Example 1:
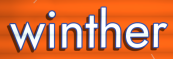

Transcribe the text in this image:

winther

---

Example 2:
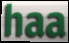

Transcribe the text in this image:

haa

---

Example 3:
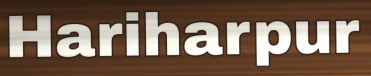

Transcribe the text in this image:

Hariharpur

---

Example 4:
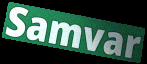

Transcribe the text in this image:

Samvar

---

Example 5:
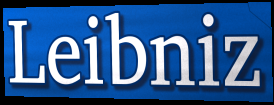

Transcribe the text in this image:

Leibniz